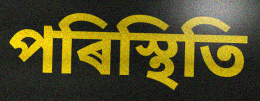
পৰিস্থিতি